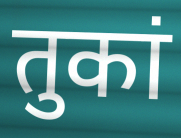
तुकां